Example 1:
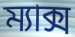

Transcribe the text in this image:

ম্যাক্স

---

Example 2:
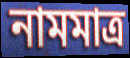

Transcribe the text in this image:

নামমাত্ৰ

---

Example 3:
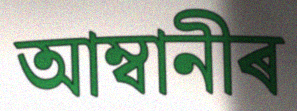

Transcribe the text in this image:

আম্বানীৰ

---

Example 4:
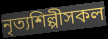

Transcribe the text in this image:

নৃত্যশিল্পীসকল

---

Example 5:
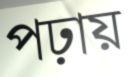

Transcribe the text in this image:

পঢ়ায়